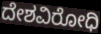
ದೇಶವಿರೋಧಿ